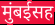
मुंबईसह